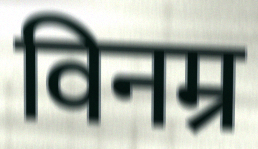
विनम्र